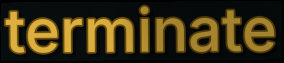
terminate